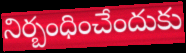
నిర్బంధించేందుకు